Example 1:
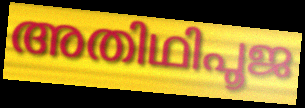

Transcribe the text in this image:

അതിഥിപൂജ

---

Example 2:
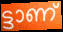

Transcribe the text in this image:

ട്ടാണ്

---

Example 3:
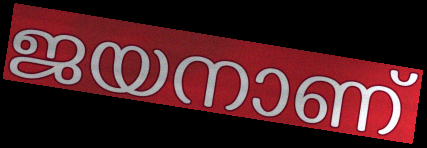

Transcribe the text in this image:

ജയനാണ്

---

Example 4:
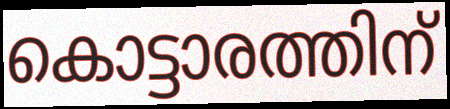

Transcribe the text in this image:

കൊട്ടാരത്തിന്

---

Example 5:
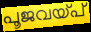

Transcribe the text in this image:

പൂജവയ്പ്